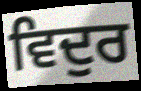
ਵਿਦੁਰ